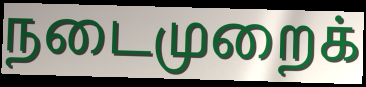
நடைமுறைக்